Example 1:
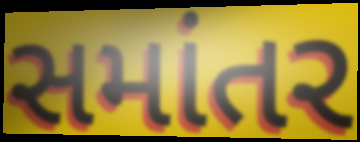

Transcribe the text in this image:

સમાંતર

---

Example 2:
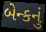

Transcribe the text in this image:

બેન્કનું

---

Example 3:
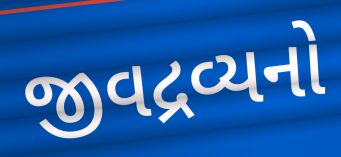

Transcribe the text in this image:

જીવદ્રવ્યનો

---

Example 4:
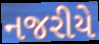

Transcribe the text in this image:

નજરીયે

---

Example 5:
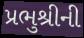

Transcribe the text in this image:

પ્રભુશ્રીની